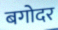
बगोदर